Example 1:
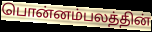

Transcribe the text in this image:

பொன்னம்பலத்தின்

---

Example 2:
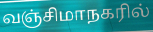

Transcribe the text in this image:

வஞ்சிமாநகரில்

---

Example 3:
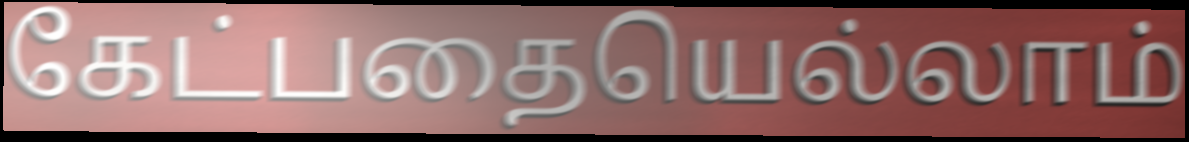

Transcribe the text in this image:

கேட்பதையெல்லாம்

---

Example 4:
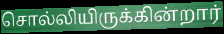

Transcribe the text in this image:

சொல்லியிருக்கின்றார்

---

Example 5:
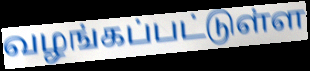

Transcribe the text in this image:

வழங்கப்பட்டுள்ள